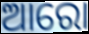
ଆରୋ